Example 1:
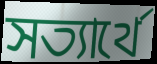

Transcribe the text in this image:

সত্যার্থে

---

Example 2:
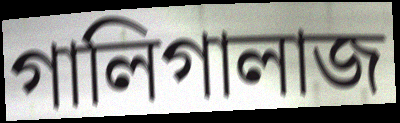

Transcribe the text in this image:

গালিগালাজ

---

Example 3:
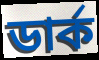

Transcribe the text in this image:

ডার্ক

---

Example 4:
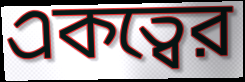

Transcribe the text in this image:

একত্বের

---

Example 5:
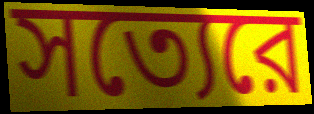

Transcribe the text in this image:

সত্যেরে